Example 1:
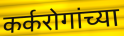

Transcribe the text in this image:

कर्करोगांच्या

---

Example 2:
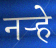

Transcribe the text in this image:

नऱ्हे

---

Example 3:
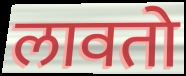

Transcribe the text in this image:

लावतो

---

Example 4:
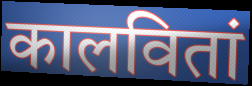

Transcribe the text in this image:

कालवितां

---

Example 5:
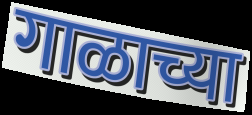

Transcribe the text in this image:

गाळाच्या